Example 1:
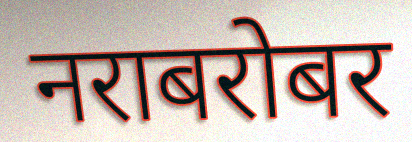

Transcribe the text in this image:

नराबरोबर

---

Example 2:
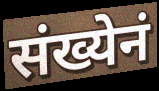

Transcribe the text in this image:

संख्येनं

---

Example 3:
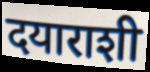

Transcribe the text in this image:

दयाराशी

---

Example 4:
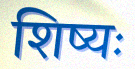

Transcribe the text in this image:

शिष्यः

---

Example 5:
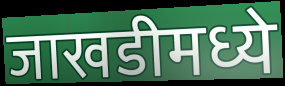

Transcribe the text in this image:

जाखडीमध्ये